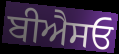
ਬੀਐਸਓ